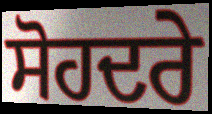
ਸੋਹਦਰੇ